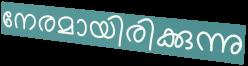
നേരമായിരിക്കുന്നു